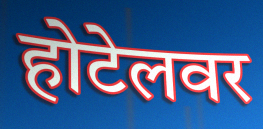
होटेलवर